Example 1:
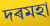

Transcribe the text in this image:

দৰমহা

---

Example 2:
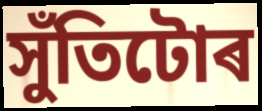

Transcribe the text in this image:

সুঁতিটোৰ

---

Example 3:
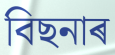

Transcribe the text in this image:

বিছনাৰ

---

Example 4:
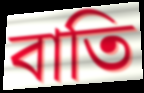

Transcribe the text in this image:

বাতি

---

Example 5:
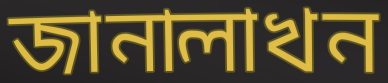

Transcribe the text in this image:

জানালাখন